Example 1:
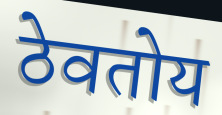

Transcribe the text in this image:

ठेवतोय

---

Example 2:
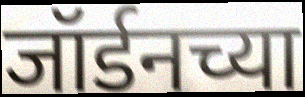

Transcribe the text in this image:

जॉर्डनच्या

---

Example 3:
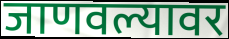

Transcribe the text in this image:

जाणवल्यावर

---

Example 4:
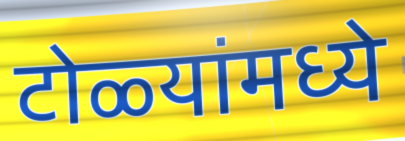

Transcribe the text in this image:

टोळ्यांमध्ये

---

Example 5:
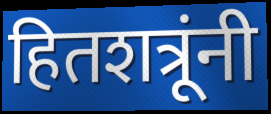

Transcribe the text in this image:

हितशत्रूंनी